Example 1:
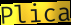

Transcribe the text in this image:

Plica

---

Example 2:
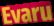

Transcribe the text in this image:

Evaru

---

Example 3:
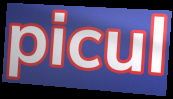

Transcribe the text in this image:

picul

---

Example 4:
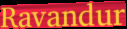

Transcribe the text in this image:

Ravandur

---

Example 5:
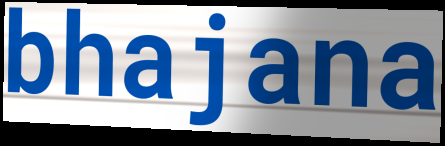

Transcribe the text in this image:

bhajana